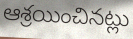
ఆశ్రయించినట్లు